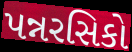
પન્નરસિકો